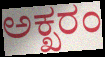
ಅಕ್ಖರಂ